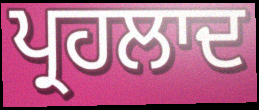
ਪ੍ਰਹਲਾਦ